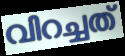
വിറച്ചത്